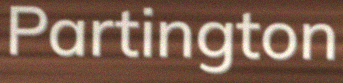
Partington